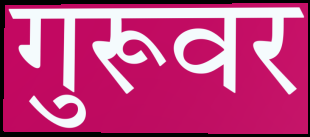
गुरूवर